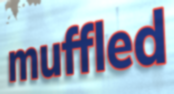
muffled